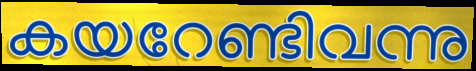
കയറേണ്ടിവന്നു